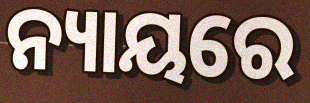
ନ୍ୟାୟରେ